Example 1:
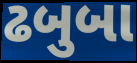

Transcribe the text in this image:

ઢબુબા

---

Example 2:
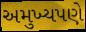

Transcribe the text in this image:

અમુખ્યપણે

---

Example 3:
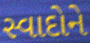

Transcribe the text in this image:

સ્વાદોને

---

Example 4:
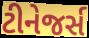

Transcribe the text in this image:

ટીનેજર્સ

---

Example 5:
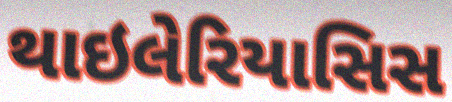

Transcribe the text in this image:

થાઇલેરિયાસિસ